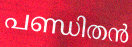
പണ്ഡിതൻ